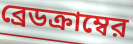
ব্রেডক্রাম্বের